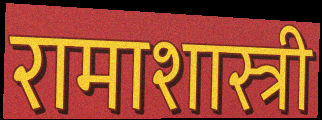
रामाशास्त्री